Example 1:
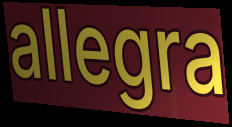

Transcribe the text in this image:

allegra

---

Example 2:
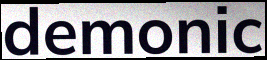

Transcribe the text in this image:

demonic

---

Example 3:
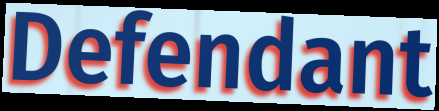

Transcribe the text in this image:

Defendant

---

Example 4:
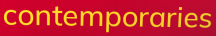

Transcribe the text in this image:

contemporaries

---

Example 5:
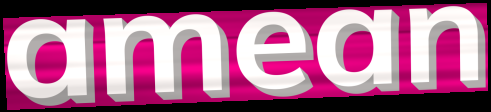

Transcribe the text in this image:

amean